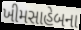
ખીમસાહેબના